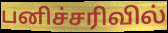
பனிச்சரிவில்